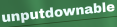
unputdownable